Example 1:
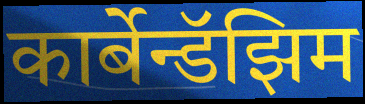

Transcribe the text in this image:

कार्बेन्डॅझिम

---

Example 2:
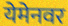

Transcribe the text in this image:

येमेनवर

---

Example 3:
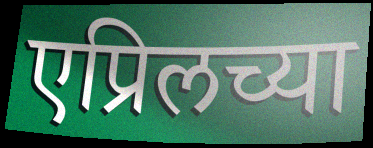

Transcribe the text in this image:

एप्रिलच्या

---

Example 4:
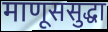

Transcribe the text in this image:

माणूससुद्धा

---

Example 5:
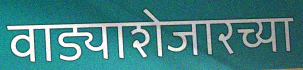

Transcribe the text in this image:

वाड्याशेजारच्या